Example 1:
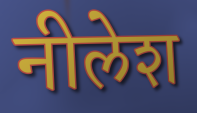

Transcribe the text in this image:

नीलेश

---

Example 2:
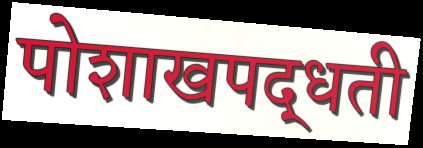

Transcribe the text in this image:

पोशाखपद्धती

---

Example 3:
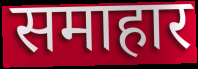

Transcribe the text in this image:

समाहार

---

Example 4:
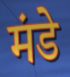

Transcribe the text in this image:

मंडे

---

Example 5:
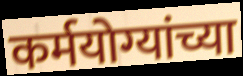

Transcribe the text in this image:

कर्मयोग्यांच्या